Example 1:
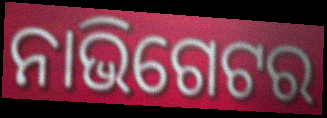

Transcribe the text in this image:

ନାଭିଗେଟର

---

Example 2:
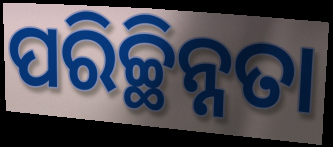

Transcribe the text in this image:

ପରିଚ୍ଛିନ୍ନତା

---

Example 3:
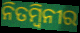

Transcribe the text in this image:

ନିତମ୍ବିନୀର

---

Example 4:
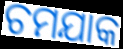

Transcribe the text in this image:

ଚମଯାକ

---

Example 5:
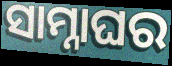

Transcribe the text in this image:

ସାମ୍ନାଘର